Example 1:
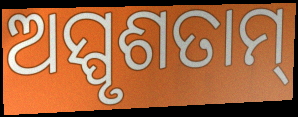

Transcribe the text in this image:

ଅସ୍ପୃଶତାମ୍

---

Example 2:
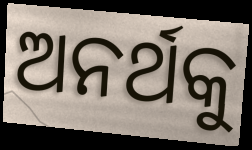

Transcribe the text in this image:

ଅନର୍ଥକୁ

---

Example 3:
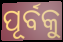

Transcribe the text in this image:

ପୂର୍ବକୁ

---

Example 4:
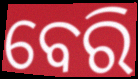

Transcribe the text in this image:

ବେରି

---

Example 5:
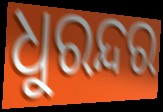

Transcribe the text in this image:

ଧୁରନ୍ଦର